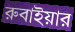
রুবাইয়ার